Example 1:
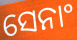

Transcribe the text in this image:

ସେନାଂ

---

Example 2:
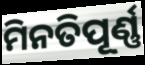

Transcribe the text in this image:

ମିନତିପୂର୍ଣ୍ଣ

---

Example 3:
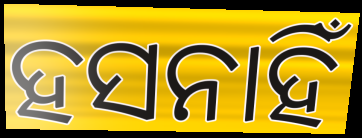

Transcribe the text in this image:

ହସନାହିଁ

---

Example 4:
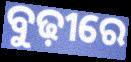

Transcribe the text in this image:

ବୁଢ଼ୀରେ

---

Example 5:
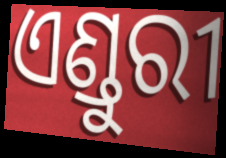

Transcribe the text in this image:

ଏଣ୍ଡୁରୀ